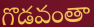
గొడవంతా